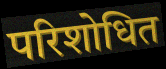
परिशोधित